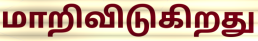
மாறிவிடுகிறது